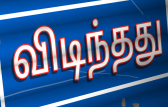
விடிந்தது